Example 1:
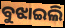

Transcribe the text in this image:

ବୁଝାଇଲି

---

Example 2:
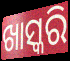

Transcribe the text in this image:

ଖାସ୍କରି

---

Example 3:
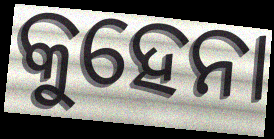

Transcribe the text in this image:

କୁହେନା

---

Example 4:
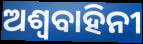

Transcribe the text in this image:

ଅଶ୍ୱବାହିନୀ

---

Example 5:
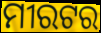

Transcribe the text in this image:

ମୀରଟର